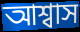
আশ্বাস